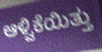
ಆಳ್ವಿಕೆಯಿತ್ತು